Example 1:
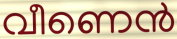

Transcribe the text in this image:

വീണെൻ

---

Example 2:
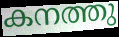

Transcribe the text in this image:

കനത്തു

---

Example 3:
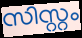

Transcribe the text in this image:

സിസ്റ്റം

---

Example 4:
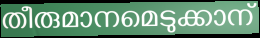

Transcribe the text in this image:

തീരുമാനമെടുക്കാന്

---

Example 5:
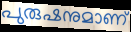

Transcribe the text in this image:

പുരുഷനുമാണ്